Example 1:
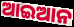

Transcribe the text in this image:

ଆଇଆନ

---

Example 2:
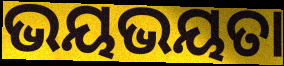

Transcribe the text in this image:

ଭୟଭୟତା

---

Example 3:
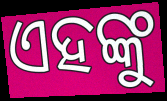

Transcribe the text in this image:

ଏହଙ୍କୁ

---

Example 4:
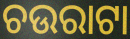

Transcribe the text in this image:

ଚଉରାଟା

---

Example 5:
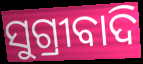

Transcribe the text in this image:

ସୁଗ୍ରୀବାଦି